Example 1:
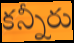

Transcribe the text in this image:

కన్నీరు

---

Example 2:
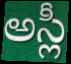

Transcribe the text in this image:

అస్లీ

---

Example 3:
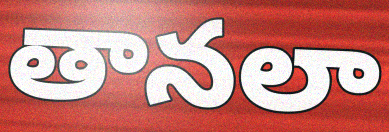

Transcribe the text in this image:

తానలా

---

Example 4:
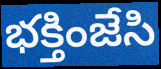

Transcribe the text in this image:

భక్తింజేసి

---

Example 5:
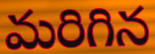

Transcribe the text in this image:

మరిగిన